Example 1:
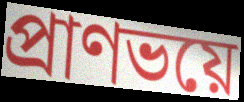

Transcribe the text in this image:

প্রাণভয়ে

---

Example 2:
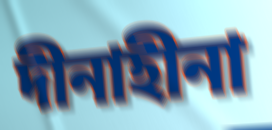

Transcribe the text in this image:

দীনাহীনা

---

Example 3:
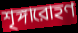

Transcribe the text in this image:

শৃঙ্গারোহণ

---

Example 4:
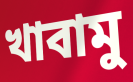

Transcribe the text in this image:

খাবামু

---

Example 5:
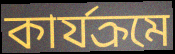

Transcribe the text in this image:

কার্যক্রমে